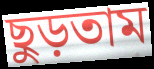
ছুড়তাম